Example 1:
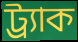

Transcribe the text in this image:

ট্র্যাক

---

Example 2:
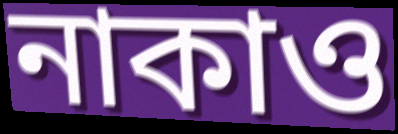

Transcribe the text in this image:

নাকাও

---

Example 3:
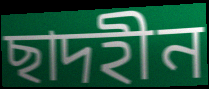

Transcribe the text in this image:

ছাদহীন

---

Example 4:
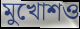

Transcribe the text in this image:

মুখোশও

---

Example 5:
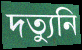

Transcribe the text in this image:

দত্যুনি